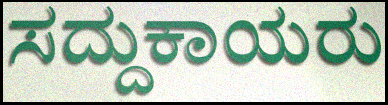
ಸದ್ದುಕಾಯರು